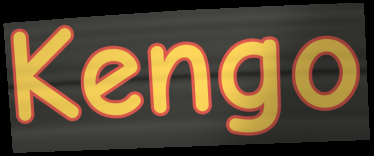
Kengo